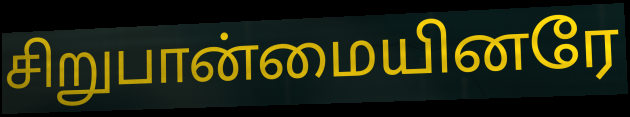
சிறுபான்மையினரே